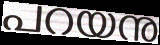
പറയനു